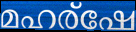
മഹര്ഷേ